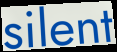
silent